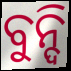
ବୁନ୍ଦି